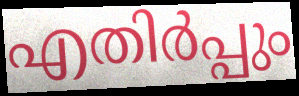
എതിർപ്പും